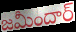
జమీందార్